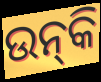
ଉନ୍‌କି